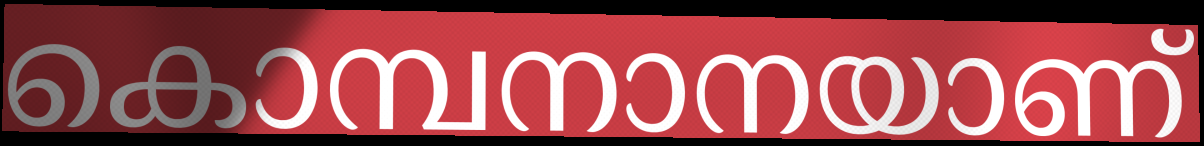
കൊമ്പനാനയാണ്